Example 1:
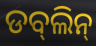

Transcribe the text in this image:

ଡବ୍‌ଲିନ୍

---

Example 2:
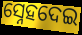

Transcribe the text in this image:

ସ୍ନେହଦେଇ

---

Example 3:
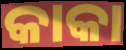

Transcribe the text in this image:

କାକା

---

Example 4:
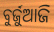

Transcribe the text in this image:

ବୁର୍ଜୁଆଜି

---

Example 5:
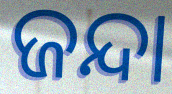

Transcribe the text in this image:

ଜନ୍ଦା